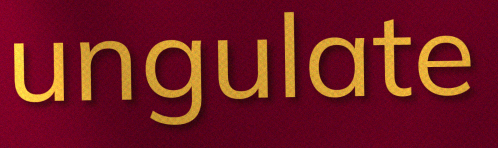
ungulate